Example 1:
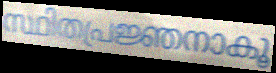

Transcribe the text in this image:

സ്ഥിതപ്രജ്ഞനാകൂ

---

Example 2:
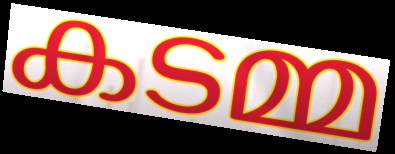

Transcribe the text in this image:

കടമ്മ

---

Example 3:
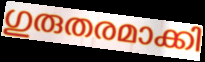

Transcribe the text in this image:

ഗുരുതരമാക്കി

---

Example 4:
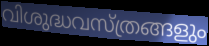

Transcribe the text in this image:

വിശുദ്ധവസ്ത്രങ്ങളും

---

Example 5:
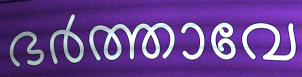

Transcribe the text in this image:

ഭർത്താവേ